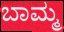
ಬಾಮ್ಮ